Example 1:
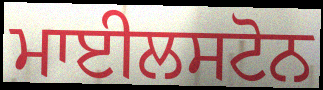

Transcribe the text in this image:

ਮਾਈਲਸਟੋਨ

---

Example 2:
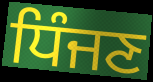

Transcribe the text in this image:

ਧਿੰਜਣ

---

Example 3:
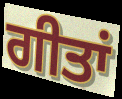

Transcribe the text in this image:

ਗੀਤਾਂ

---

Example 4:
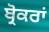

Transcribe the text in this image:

ਬ੍ਰੋਕਰਾਂ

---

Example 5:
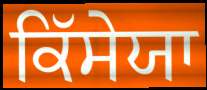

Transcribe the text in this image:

ਕਿੱਸੇਯਾ